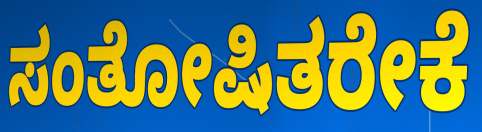
ಸಂತೋಷಿತರೇಕೆ